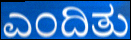
ಎಂದಿತು